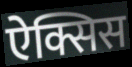
ऐक्सिस